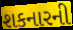
શકનારની